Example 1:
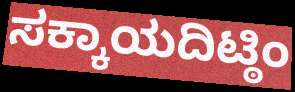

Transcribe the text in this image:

ಸಕ್ಕಾಯದಿಟ್ಠಿಂ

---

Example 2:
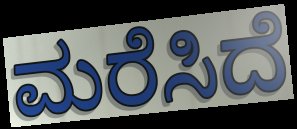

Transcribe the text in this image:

ಮರೆಸಿದೆ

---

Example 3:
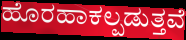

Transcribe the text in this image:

ಹೊರಹಾಕಲ್ಪಡುತ್ತವೆ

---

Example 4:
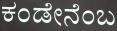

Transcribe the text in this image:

ಕಂಡೇನೆಂಬ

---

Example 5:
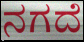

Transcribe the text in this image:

ನಗದೆ